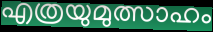
എത്രയുമുത്സാഹം